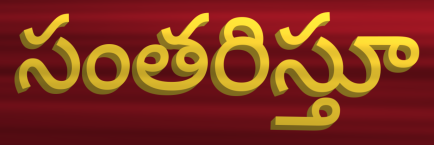
సంతరిస్తూ